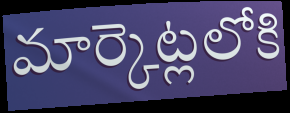
మార్కెట్లలోకి